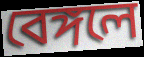
বেঙ্গলে